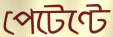
পেটেণ্টে